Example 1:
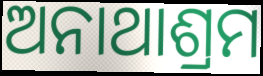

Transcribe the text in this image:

ଅନାଥାଶ୍ରମ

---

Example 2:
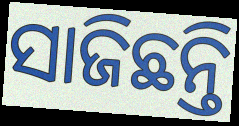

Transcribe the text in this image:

ସାଜିଛନ୍ତି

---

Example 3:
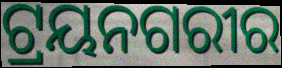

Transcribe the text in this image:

ଟ୍ରୟନଗରୀର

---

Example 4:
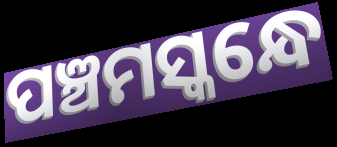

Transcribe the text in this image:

ପଞ୍ଚମସ୍କନ୍ଧେ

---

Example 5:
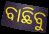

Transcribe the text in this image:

ବାଛିବୁ